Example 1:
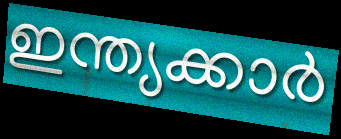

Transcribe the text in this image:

ഇന്ത്യക്കാർ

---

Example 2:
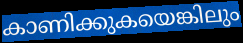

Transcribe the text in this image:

കാണിക്കുകയെങ്കിലും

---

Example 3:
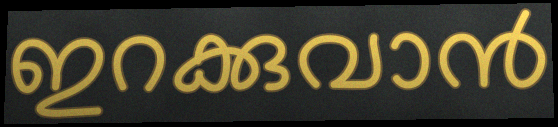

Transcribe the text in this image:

ഇറക്കുവാൻ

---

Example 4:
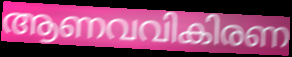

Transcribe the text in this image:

ആണവവികിരണ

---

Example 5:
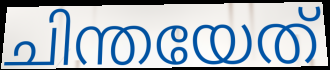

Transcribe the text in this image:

ചിന്തയേത്